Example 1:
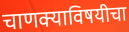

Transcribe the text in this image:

चाणक्याविषयीचा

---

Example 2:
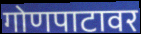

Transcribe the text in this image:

गोणपाटावर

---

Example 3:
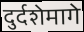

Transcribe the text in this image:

दुर्दशेमागे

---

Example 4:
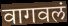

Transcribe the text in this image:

वागवलं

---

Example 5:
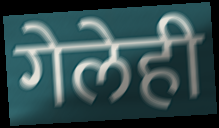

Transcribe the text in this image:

गेलेही